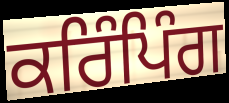
ਕਰਿੰਪਿੰਗ